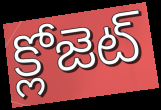
క్లోజెట్